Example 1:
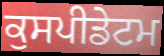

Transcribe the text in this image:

ਕੁਸਪੀਡੇਟਮ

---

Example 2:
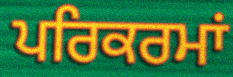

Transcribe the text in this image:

ਪਰਿਕਰਮਾਂ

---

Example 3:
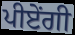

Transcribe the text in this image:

ਪੀਏਂਗੀ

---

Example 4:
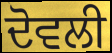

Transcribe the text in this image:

ਦੋਵਲੀ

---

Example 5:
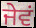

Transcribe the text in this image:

ਜੇਵਂ